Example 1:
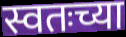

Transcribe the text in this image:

स्वतःच्या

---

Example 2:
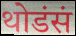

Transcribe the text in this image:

थोडंसं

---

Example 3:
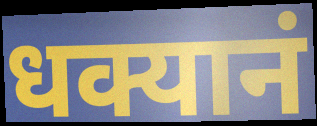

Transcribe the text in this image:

धक्यानं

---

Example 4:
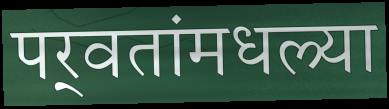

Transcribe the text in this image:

पर्वतांमधल्या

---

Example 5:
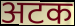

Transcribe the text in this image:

अटक